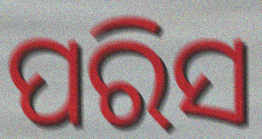
ପରିସ